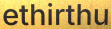
ethirthu